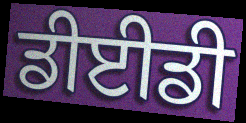
ਡੀਈਡੀ